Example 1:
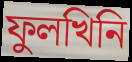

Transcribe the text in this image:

ফুলখিনি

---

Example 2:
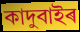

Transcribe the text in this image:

কাদুবাইৰ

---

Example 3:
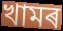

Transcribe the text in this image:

খামৰ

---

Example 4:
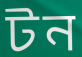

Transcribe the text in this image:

টন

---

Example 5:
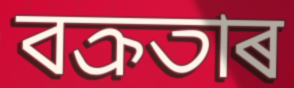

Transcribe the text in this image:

বক্ৰতাৰ